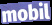
mobil